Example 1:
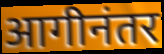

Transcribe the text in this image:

आगीनंतर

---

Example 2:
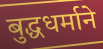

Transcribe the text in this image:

बुद्धधर्माने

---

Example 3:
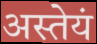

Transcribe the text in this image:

अस्तेयं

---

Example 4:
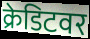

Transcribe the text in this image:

क्रेडिटवर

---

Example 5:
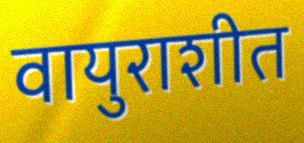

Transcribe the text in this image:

वायुराशीत